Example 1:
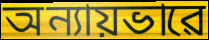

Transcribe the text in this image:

অন্যায়ভাৱে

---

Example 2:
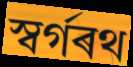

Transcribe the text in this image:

স্বৰ্গৰথ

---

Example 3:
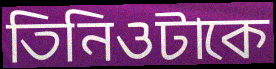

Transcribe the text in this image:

তিনিওটাকে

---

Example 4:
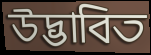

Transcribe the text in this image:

উদ্ভাবিত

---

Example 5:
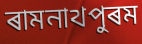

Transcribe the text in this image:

ৰামনাথপুৰম